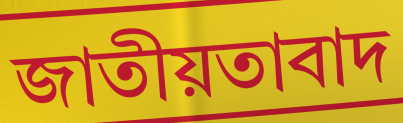
জাতীয়তাবাদ